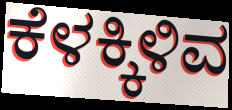
ಕೆಳಕ್ಕಿಳಿವ